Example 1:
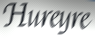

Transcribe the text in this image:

Hureyre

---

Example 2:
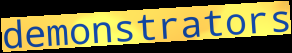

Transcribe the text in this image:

demonstrators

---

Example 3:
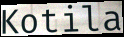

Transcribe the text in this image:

Kotila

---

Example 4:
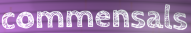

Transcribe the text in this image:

commensals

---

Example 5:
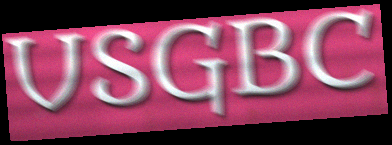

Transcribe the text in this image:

USGBC